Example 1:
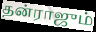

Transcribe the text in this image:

தன்ராஜும்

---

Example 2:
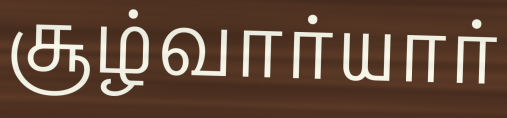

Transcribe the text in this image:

சூழ்வார்யார்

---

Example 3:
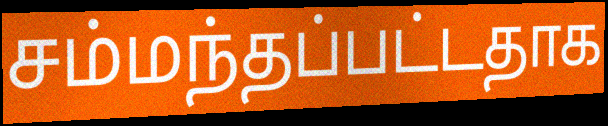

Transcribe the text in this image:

சம்மந்தப்பட்டதாக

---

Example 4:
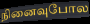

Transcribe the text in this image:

நினைவுபோல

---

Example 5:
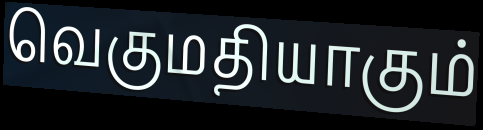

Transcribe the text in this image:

வெகுமதியாகும்